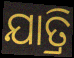
ଯାତ୍ରି